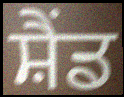
ਸ਼ੈਂਡ